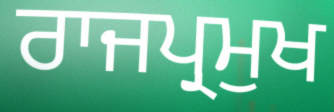
ਰਾਜਪ੍ਰਮੁਖ